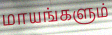
மாயங்களும்